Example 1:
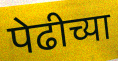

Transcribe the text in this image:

पेढीच्या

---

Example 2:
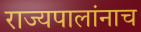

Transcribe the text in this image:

राज्यपालांनाच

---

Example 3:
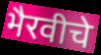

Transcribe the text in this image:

भैरवीचे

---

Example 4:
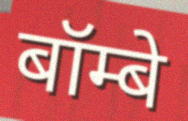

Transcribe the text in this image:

बॉम्बे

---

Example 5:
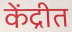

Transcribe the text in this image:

केंद्रीत